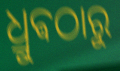
ଧ୍ରୁଵଠାରୁ